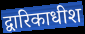
द्वारिकाधीश